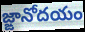
జ్ఙానోదయం